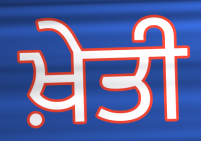
ਖ਼ੇਤੀ